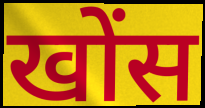
खोंस